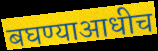
बघण्याआधीच